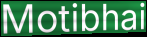
Motibhai